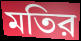
মতির